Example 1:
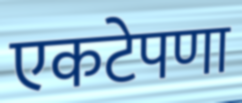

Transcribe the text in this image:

एकटेपणा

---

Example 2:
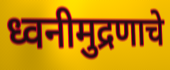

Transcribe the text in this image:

ध्वनीमुद्रणाचे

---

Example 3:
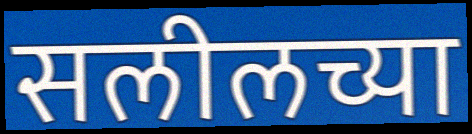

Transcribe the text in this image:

सलीलच्या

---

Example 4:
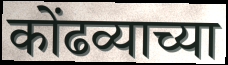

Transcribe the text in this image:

कोंढव्याच्या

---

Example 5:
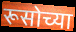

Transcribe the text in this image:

रूसोच्या